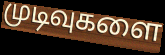
முடிவுகளை